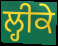
ਲ੍ਹੀਕੇ